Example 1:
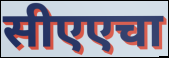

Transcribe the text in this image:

सीएएचा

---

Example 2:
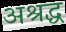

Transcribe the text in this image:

अश्रद्ध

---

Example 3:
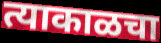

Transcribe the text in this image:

त्याकाळचा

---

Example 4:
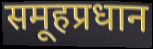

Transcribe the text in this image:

समूहप्रधान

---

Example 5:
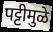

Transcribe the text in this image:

पट्टीमुळे